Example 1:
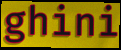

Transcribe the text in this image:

ghini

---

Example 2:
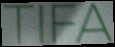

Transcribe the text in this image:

TIFA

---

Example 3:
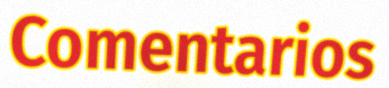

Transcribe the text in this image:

Comentarios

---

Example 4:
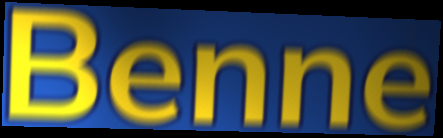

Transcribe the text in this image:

Benne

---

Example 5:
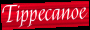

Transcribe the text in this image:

Tippecanoe